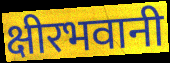
क्षीरभवानी